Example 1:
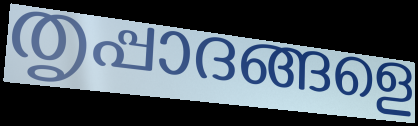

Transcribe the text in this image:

തൃപ്പാദങ്ങളെ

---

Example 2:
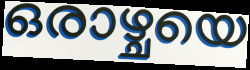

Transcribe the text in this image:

ഒരാഴ്ചയെ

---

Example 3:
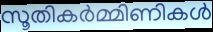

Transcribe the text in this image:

സൂതികർമ്മിണികൾ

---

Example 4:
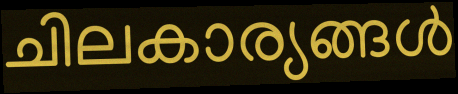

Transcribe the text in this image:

ചിലകാര്യങ്ങൾ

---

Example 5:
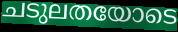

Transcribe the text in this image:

ചടുലതയോടെ